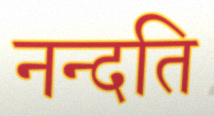
नन्दति